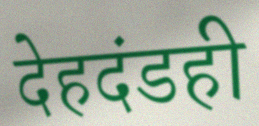
देहदंडही